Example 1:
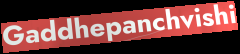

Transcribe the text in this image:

Gaddhepanchvishi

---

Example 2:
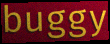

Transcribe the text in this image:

buggy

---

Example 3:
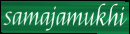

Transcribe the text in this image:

samajamukhi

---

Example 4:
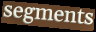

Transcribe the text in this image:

segments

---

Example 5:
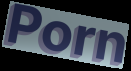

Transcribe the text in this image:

Porn